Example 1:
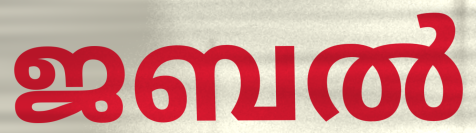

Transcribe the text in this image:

ജബൽ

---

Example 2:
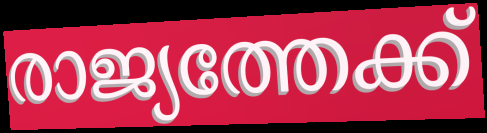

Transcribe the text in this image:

രാജ്യത്തേക്ക്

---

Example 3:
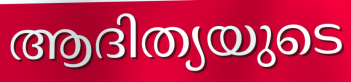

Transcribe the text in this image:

ആദിത്യയുടെ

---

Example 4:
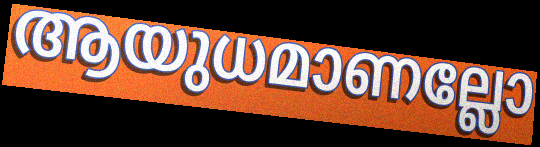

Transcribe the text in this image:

ആയുധമാണല്ലോ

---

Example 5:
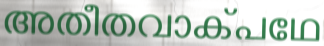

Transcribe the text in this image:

അതീതവാക്പഥേ